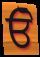
ਓੋ